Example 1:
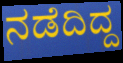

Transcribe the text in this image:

ನಡೆದಿದ್ದ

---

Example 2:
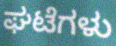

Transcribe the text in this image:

ಘಟೆಗಳು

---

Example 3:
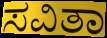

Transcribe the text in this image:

ಸವಿತಾ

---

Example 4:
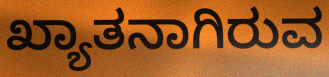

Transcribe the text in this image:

ಖ್ಯಾತನಾಗಿರುವ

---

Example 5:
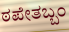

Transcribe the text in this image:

ಠಪೇತಬ್ಬಂ